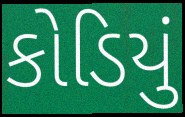
કોડિયું